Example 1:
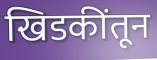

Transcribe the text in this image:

खिडकींतून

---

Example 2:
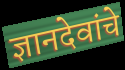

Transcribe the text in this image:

ज्ञानदेवांचे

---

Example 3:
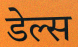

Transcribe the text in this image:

डेल्स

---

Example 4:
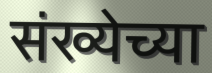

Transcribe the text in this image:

संख्येच्या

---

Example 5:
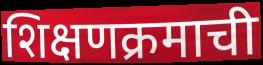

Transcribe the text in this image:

शिक्षणक्रमाची